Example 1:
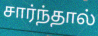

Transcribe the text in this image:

சார்ந்தால்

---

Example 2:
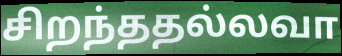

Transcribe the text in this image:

சிறந்ததல்லவா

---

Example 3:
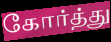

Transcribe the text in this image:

கோர்த்து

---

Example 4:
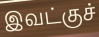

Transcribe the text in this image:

இவட்குச்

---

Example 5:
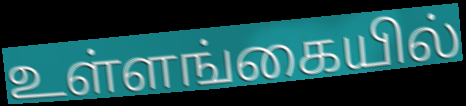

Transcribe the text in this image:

உள்ளங்கையில்